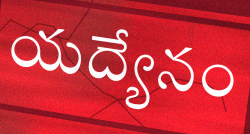
యద్యేనం